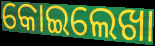
କୋଇଲେଖା